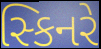
સ્કિનરે